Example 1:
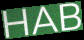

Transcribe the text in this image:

HAB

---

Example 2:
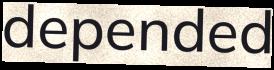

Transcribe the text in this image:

depended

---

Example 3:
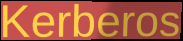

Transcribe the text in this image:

Kerberos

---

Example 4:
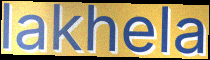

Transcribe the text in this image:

lakhela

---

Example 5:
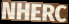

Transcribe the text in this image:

NHERC